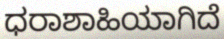
ಧರಾಶಾಹಿಯಾಗಿದೆ